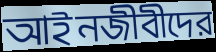
আইনজীবীদের